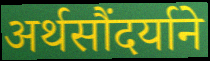
अर्थसौंदर्याने